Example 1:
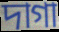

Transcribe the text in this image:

দাগা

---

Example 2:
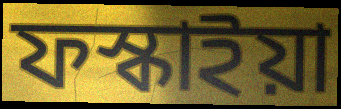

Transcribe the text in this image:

ফস্কাইয়া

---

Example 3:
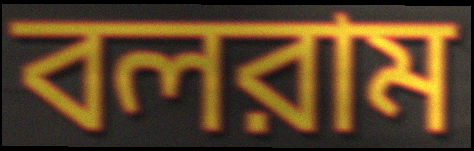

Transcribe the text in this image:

বলরাম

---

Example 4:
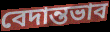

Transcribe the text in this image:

বেদান্তভাব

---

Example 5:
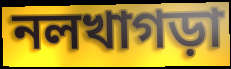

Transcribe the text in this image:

নলখাগড়া